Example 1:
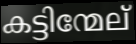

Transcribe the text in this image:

കട്ടിന്മേല്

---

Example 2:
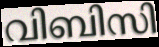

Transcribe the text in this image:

വിബിസി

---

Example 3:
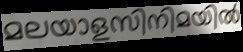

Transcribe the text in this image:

മലയാളസിനിമയിൽ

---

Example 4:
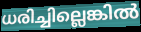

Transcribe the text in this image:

ധരിച്ചില്ലെങ്കിൽ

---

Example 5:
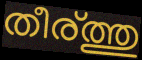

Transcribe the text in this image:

തീര്ത്തു